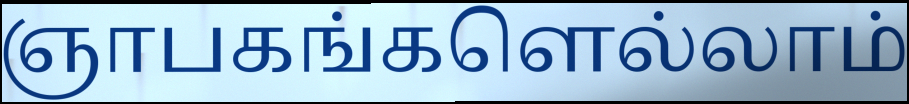
ஞாபகங்களெல்லாம்